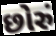
છોરું